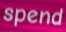
spend